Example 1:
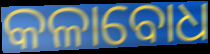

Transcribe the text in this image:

କଳାବୋଧ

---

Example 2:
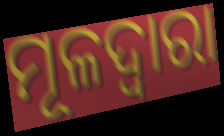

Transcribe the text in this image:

ମୂଳଦ୍ଵାରା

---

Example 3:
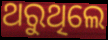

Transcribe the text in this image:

ଥରୁଥିଲେ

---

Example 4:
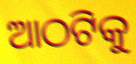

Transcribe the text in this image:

ଆଠଟିକୁ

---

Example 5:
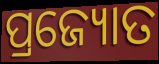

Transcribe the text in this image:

ପ୍ରଜ୍ୟୋତ